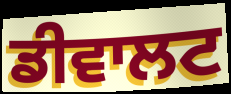
ਡੀਵਾਲਟ